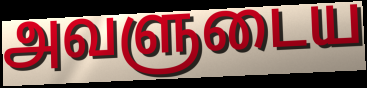
அவளுடைய